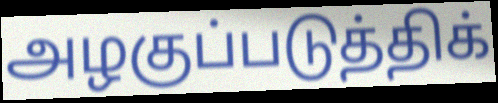
அழகுப்படுத்திக்